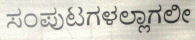
ಸಂಪುಟಗಳಲ್ಲಾಗಲೀ